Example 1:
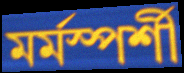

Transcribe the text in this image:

মৰ্মস্পৰ্শী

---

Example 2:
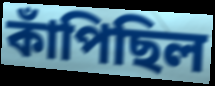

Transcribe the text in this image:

কাঁপিছিল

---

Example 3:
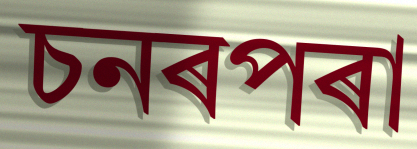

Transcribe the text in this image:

চনৰপৰা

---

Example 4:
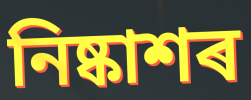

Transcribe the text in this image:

নিষ্কাশৰ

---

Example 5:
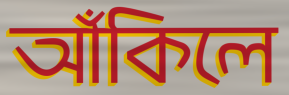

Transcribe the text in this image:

আঁকিলে